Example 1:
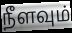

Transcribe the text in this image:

நீளவும்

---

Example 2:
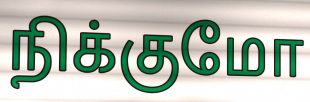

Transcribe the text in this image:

நிக்குமோ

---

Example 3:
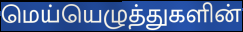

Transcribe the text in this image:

மெய்யெழுத்துகளின்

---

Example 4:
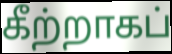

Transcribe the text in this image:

கீற்றாகப்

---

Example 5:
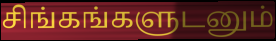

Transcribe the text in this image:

சிங்கங்களுடனும்